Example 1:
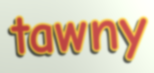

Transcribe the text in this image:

tawny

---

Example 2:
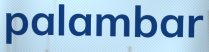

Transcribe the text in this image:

palambar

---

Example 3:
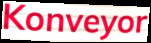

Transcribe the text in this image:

Konveyor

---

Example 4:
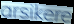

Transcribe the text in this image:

arsikere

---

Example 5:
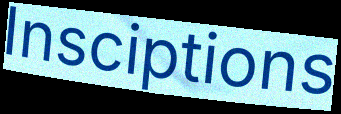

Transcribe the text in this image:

Insciptions